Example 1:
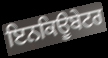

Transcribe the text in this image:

ਇਨਕਿਊਬੇਟਰ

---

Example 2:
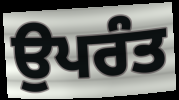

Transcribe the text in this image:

ਉਪਰੰਤ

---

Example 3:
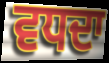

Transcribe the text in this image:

ਵਧਦਾ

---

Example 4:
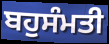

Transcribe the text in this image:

ਬਹੁਸੰਮਤੀ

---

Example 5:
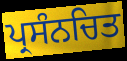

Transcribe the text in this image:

ਪ੍ਰਸੰਨਚਿਤ